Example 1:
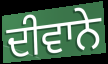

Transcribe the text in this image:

ਦੀਵਾਨੇ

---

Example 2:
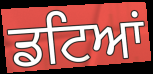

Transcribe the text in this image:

ਡਟਿਆਂ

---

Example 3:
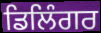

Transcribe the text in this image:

ਡਿਲਿੰਗਰ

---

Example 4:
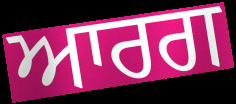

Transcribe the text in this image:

ਆਰਗ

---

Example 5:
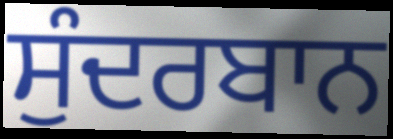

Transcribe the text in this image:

ਸੁੰਦਰਬਾਨ